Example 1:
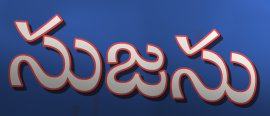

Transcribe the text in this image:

సుజసు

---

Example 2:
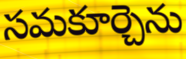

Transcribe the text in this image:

సమకూర్చెను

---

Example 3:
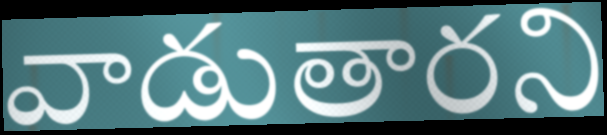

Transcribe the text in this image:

వాడుతారని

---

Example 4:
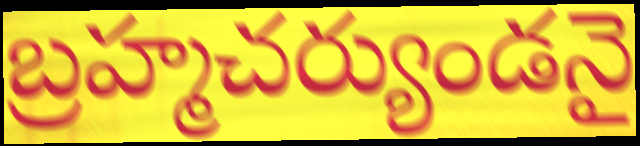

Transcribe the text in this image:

బ్రహ్మచర్యుండనై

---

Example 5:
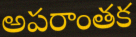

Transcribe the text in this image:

అపరాంతక